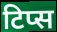
टिप्स